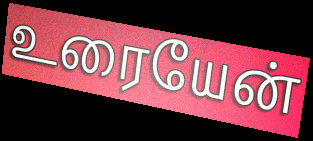
உரையேன்